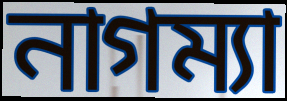
নাগম্যা